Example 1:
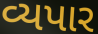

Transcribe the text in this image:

વ્યપાર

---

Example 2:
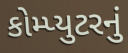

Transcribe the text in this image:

કોમ્પ્યુટરનું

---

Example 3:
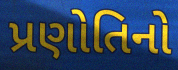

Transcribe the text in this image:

પ્રણોતિનો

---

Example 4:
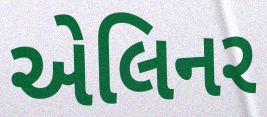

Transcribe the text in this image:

એલિનર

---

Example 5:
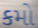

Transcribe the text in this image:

કમો